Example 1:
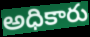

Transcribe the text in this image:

అధికారు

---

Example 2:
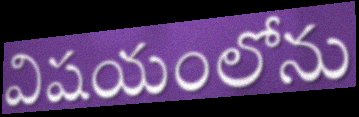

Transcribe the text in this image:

విషయంలోను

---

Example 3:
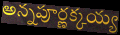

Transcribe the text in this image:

అన్నపూర్ణక్కయ్య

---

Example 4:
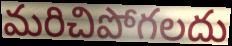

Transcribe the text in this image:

మరిచిపోగలదు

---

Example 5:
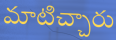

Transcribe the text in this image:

మాటిచ్చారు